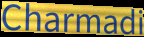
Charmadi